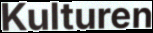
Kulturen